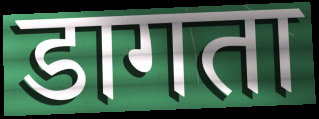
डागता